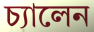
চ্যালেন